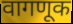
वागणूक